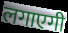
लगाएगी